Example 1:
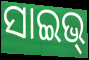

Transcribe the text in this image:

ସାଇଭ୍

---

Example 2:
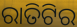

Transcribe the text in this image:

ରାତିଟିର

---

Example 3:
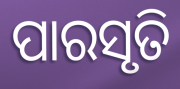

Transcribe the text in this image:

ପାରସୃତି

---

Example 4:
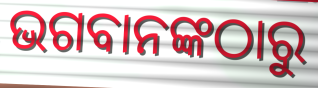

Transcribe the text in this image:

ଭଗବାନଙ୍କଠାରୁ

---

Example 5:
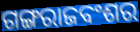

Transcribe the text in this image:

ଗଙ୍ଗରାଜବଂଶର